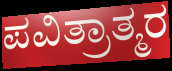
ಪವಿತ್ರಾತ್ಮರ